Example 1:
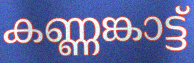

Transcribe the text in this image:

കണ്ണങ്കാട്ട്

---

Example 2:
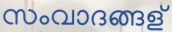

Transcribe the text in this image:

സംവാദങ്ങള്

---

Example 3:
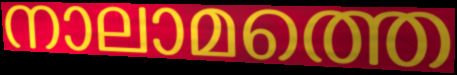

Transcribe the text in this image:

നാലാമത്തെ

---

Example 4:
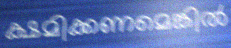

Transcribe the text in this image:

ക്ഷമിക്കണമെങ്കിൽ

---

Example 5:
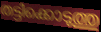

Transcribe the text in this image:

തട്ടിക്കൊടുത്തു